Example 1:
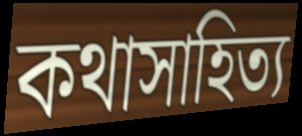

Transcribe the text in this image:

কথাসাহিত্য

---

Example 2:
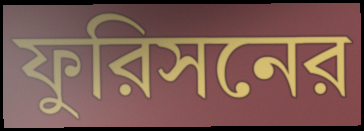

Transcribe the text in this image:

ফুরিসনের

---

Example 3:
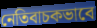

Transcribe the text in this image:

নেতিবাচকভাবে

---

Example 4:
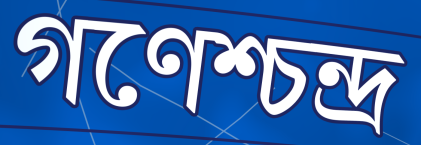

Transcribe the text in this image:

গণেশ্চন্দ্র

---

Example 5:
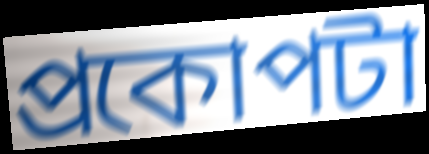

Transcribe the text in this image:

প্রকোপটা